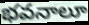
భవనాలూ